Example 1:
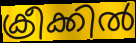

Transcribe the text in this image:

ക്രീക്കിൽ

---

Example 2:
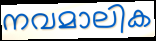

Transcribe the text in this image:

നവമാലിക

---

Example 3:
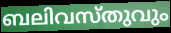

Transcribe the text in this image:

ബലിവസ്തുവും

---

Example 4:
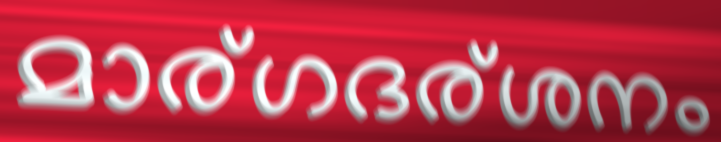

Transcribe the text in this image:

മാര്ഗദര്ശനം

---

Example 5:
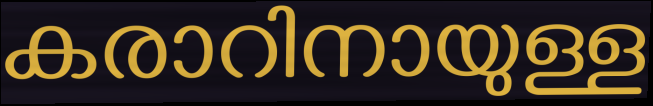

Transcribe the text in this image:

കരാറിനായുള്ള